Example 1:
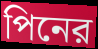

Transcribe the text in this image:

পিনের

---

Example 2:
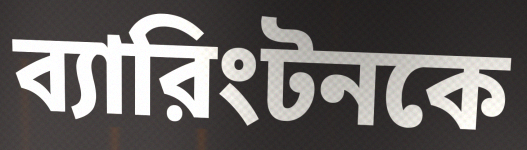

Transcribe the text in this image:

ব্যারিংটনকে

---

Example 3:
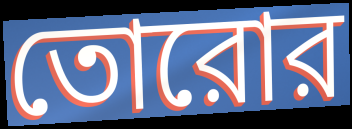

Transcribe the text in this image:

তোরোর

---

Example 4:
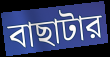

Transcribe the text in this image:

বাছাটার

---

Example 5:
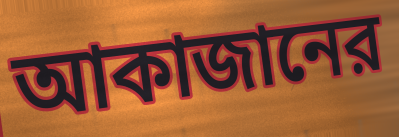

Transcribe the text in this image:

আকাজানের